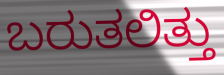
ಬರುತಲಿತ್ತು